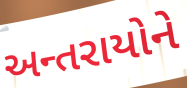
અન્તરાયોને